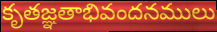
కృతజ్ఞతాభివందనములు